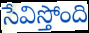
సేవిస్తోంది